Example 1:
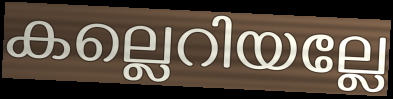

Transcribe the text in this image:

കല്ലെറിയല്ലേ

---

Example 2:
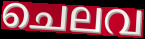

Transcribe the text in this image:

ചെലവ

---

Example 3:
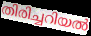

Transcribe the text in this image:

തിരിച്ചറിയൽ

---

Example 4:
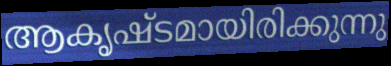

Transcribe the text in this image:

ആകൃഷ്ടമായിരിക്കുന്നു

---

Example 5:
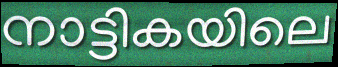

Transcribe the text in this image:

നാട്ടികയിലെ